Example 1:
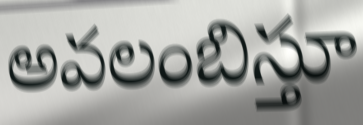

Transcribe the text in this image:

అవలంబిస్తూ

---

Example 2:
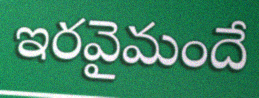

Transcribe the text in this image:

ఇరవైమందే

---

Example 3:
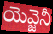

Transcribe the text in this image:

యెవ్జెనీ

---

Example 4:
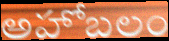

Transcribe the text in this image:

అహోబలం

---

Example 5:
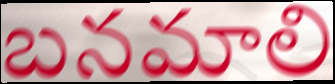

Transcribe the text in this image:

బనమాలి